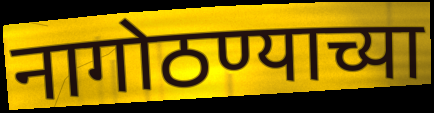
नागोठण्याच्या